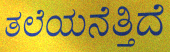
ತಲೆಯನೆತ್ತಿದೆ